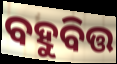
ବହୁବିତ୍ତ